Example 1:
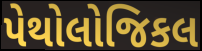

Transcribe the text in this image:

પેથોલોજિકલ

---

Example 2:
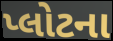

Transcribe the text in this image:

પ્લોટના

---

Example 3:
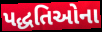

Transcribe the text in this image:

પદ્ધતિઓના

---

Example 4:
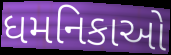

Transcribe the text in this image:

ધમનિકાઓ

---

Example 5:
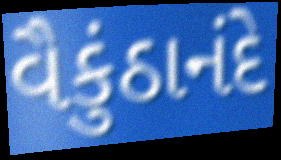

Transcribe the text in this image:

વૈકુંઠાનંદે